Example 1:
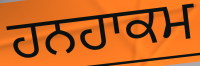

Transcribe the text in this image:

ਹਨਹਾਕਮ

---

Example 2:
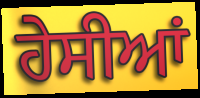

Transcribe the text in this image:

ਹੇਸੀਆਂ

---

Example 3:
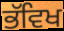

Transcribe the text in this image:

ਭੱਵਿਖ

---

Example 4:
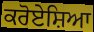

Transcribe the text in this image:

ਕਰੋਏਸ਼ਿਆ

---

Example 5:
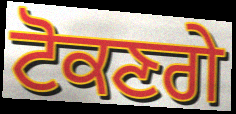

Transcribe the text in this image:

ਟੋਕਣਗੇ